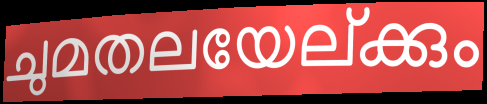
ചുമതലയേല്ക്കും